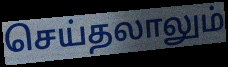
செய்தலாலும்